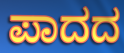
ಪಾದದ